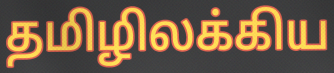
தமிழிலக்கிய